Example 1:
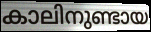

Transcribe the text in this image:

കാലിനുണ്ടായ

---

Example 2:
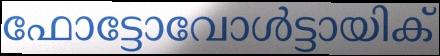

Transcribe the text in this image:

ഫോട്ടോവോൾട്ടായിക്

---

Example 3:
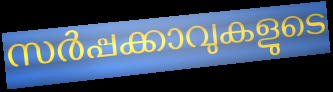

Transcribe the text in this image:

സർപ്പക്കാവുകളുടെ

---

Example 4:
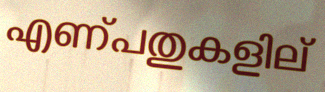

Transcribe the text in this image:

എണ്പതുകളില്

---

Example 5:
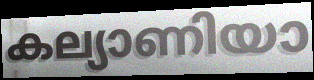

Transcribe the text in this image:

കല്യാണിയാ